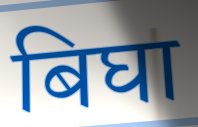
बिघा